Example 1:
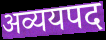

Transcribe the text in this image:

अव्ययपद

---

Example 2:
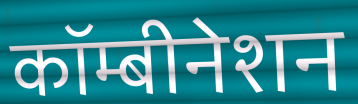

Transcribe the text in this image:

कॉम्बीनेशन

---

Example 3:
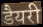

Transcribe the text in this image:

डैयरी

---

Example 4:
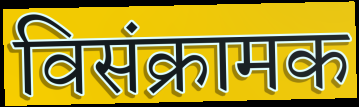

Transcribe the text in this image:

विसंक्रामक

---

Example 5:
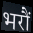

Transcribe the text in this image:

भरौं